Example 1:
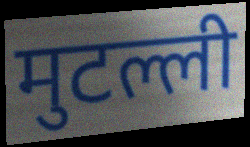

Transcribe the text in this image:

मुटल्ली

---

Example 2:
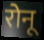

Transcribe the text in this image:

रोनू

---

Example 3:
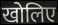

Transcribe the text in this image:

खोलिए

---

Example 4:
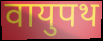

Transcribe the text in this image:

वायुपथ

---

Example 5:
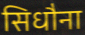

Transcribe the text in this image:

सिधौना